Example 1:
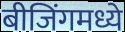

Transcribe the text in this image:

बीजिंगमध्ये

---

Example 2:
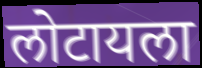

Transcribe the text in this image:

लोटायला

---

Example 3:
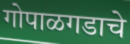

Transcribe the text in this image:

गोपाळगडाचे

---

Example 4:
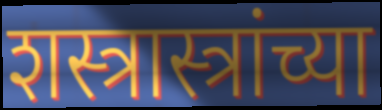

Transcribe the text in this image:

शस्त्रास्त्रांच्या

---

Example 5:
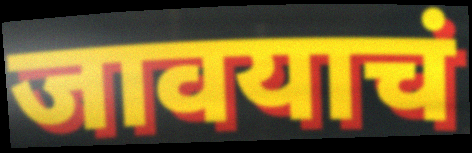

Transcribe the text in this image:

जावयाचं